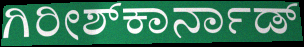
ಗಿರೀಶ್‌ಕಾರ್ನಾಡ್